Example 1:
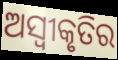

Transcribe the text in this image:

ଅସ୍ୱୀକୃତିର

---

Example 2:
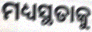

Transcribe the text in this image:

ମଧ୍ୟସ୍ଥତାକୁ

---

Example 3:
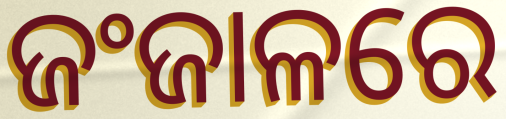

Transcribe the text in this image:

ଜଂଜାଳରେ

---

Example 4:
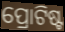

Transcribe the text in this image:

ପ୍ରୋଟିଷ୍ଟ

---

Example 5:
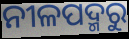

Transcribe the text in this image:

ନୀଳପଦ୍ମରୁ